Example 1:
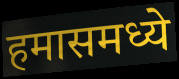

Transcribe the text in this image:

हमासमध्ये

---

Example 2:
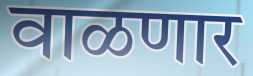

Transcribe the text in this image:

वाळणार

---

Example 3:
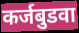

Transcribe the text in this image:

कर्जबुडवा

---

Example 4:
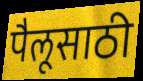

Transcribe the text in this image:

पैलूसाठी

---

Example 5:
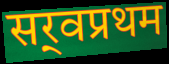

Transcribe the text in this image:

सर्वप्रथम